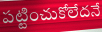
పట్టించుకోలేదనే